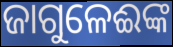
ଜାଗୁଳେଈଙ୍କ